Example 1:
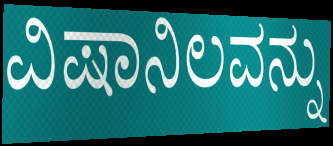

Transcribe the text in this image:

ವಿಷಾನಿಲವನ್ನು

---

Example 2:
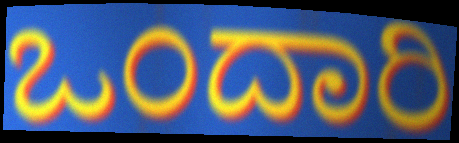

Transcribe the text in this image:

ಒಂದಾರಿ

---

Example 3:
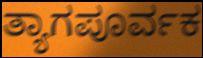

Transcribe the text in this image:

ತ್ಯಾಗಪೂರ್ವಕ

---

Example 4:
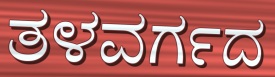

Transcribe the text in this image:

ತಳವರ್ಗದ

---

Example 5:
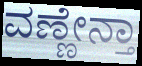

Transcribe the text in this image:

ವಣ್ಣೇನ್ತಾ